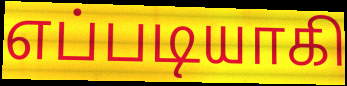
எப்படியாகி